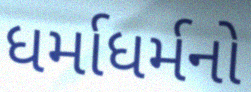
ધર્માધર્મનો